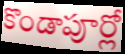
కొండాపూర్లో